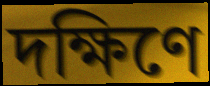
দক্ষিণে